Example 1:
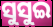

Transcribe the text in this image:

ସୁସୁଇ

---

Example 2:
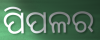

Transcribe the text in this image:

ପିପଳର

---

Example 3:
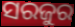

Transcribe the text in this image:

ସରଜୁର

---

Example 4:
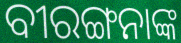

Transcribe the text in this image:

ବୀରଙ୍ଗନାଙ୍କ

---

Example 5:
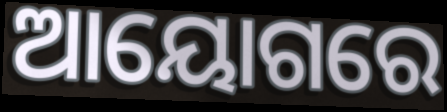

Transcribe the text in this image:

ଆୟୋଗରେ